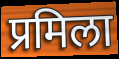
प्रमिला